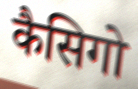
कैसिगो